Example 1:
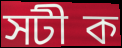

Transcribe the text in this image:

সটীক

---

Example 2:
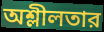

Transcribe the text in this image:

অশ্লীলতার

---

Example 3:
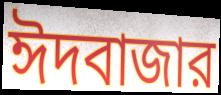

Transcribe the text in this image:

ঈদবাজার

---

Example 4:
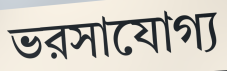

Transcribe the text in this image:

ভরসাযোগ্য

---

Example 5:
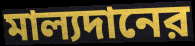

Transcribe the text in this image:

মাল্যদানের